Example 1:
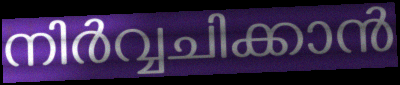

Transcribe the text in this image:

നിർവ്വചിക്കാൻ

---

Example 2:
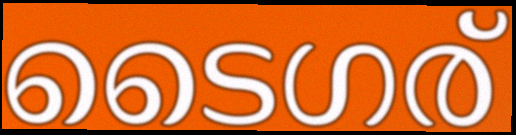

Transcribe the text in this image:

ടൈഗര്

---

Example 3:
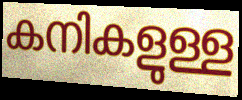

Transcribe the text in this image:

കനികളുള്ള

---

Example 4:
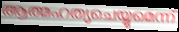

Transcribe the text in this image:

ആത്മഹത്യചെയ്യുമെന്ന്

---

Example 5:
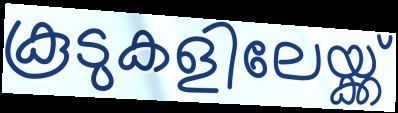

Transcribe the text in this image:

കൂടുകളിലേയ്ക്ക്